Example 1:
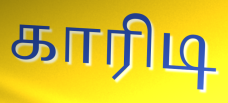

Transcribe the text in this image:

காரிடி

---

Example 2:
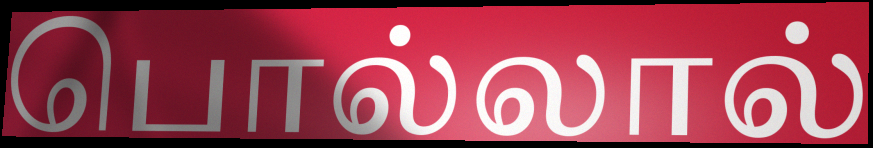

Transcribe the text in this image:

பொல்லால்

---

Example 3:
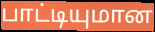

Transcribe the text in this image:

பாட்டியுமான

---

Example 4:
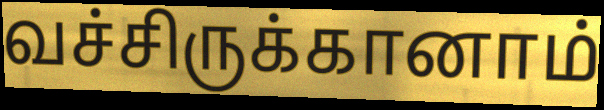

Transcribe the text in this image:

வச்சிருக்கானாம்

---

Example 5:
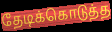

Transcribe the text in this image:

தேடிக்கொடுத்த